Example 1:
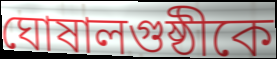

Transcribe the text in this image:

ঘোষালগুষ্ঠীকে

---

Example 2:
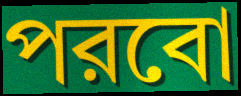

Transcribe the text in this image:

পরবো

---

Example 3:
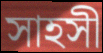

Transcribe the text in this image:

সাহসী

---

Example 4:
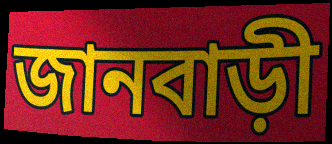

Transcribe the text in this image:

জানবাড়ী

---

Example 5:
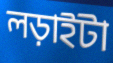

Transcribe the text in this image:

লড়াইটা